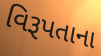
વિરૂપતાના